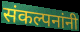
संकल्पनांनी